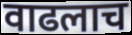
वाढलाच